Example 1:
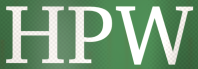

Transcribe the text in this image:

HPW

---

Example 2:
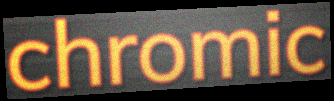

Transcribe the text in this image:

chromic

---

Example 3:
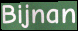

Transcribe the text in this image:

Bijnan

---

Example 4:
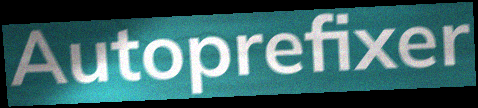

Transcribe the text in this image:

Autoprefixer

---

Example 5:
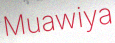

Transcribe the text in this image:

Muawiya